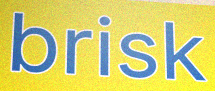
brisk